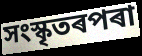
সংস্কৃতৰপৰা